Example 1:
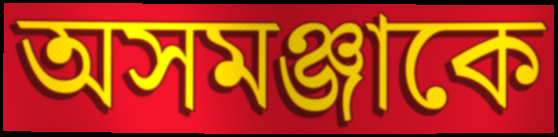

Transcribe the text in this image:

অসমঞ্জাকে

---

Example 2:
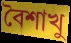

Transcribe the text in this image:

বৈশাখু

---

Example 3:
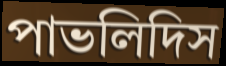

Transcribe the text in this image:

পাভলিদিস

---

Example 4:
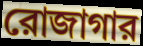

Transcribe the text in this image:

রোজাগার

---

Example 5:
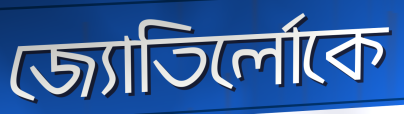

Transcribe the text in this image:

জ্যোতির্লোকে